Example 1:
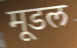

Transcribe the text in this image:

मूडल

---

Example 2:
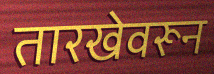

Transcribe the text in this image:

तारखेवरून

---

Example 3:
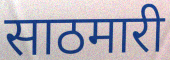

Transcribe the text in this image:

साठमारी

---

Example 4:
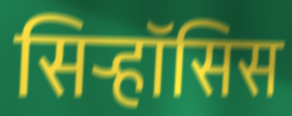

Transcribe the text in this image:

सिऱ्हॉसिस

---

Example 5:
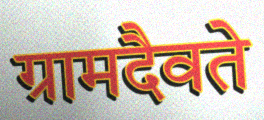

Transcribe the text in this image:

ग्रामदैवते